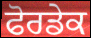
ਫੋਰਡੇਕ